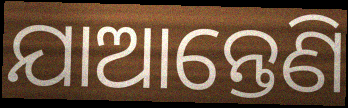
ଯାଆନ୍ତେଣି